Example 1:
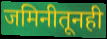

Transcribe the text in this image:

जमिनीतूनही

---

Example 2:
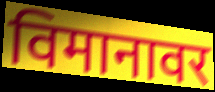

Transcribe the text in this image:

विमानावर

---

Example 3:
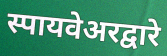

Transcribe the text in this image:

स्पायवेअरद्वारे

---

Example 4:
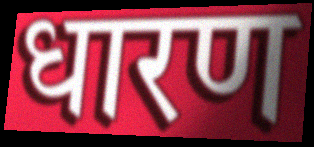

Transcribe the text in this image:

धारण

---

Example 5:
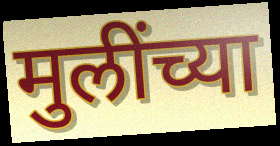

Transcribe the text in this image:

मुलींच्या